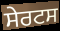
ਸੇਰਟਸ